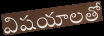
విషయాలతో